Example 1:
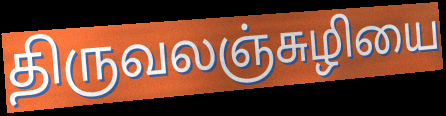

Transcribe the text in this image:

திருவலஞ்சுழியை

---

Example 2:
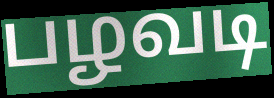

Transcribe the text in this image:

பழவடி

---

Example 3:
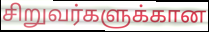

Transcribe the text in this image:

சிறுவர்களுக்கான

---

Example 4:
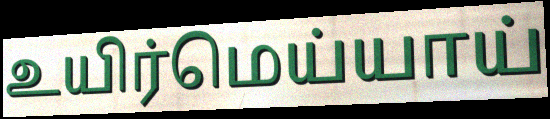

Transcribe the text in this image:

உயிர்மெய்யாய்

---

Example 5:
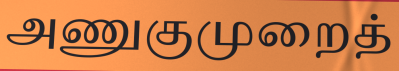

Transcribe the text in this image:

அணுகுமுறைத்